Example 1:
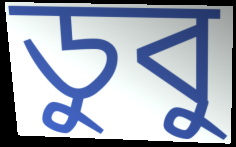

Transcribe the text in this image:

ডুবু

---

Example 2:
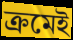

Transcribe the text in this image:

ক্রমেই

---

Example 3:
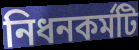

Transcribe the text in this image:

নিধনকর্মটি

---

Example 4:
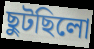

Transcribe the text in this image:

ছুটছিলো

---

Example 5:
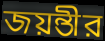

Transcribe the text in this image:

জয়ন্তীর